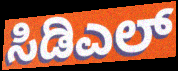
ಸಿಡಿಎಲ್